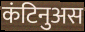
कंटिनुअस